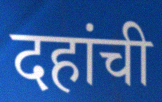
दहांची